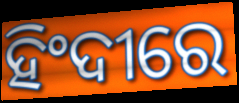
ହିଂଦୀରେ